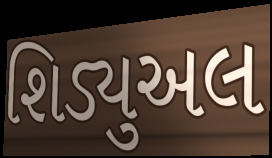
શિડ્યુઅલ